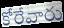
కోరేవారు